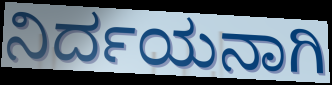
ನಿರ್ದಯನಾಗಿ